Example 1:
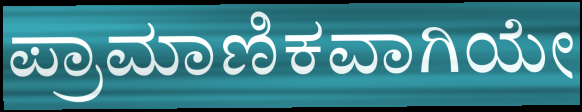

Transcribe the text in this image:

ಪ್ರಾಮಾಣಿಕವಾಗಿಯೇ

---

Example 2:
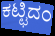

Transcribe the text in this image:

ಕಟ್ಟಿದಂ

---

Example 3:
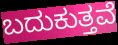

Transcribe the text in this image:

ಬದುಕುತ್ತವೆ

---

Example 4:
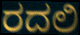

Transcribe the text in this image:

ರದಲಿ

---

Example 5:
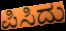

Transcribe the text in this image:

ಪಿಸಿದು